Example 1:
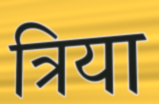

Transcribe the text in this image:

त्रिया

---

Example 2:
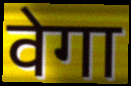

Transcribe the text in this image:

वेगा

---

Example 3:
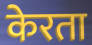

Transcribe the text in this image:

केरता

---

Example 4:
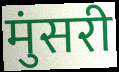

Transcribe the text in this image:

मुंसरी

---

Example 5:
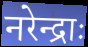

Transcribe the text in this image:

नरेन्द्राः